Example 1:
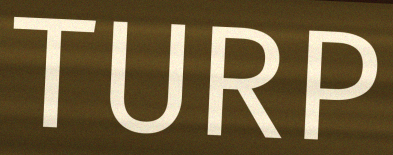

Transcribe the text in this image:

TURP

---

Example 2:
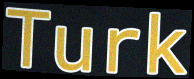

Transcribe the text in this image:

Turk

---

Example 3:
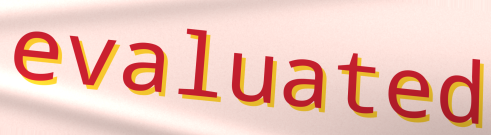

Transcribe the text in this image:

evaluated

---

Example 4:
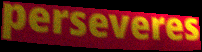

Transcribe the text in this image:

perseveres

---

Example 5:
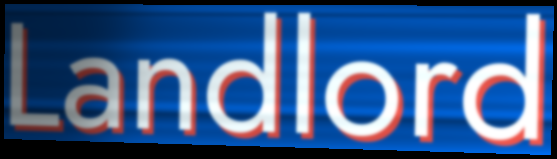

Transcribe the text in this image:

Landlord